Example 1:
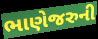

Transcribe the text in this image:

ભાણેજરુની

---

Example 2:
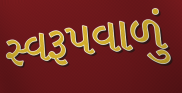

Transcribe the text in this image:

સ્વરૂપવાળું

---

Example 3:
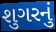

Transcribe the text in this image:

શુગરનું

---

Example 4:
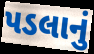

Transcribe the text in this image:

પડલાનું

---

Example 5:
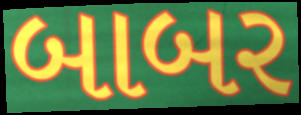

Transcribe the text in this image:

બાબર